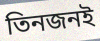
তিনজনই